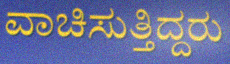
ವಾಚಿಸುತ್ತಿದ್ದರು